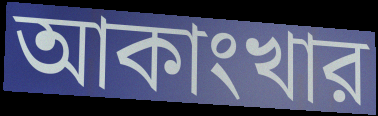
আকাংখার